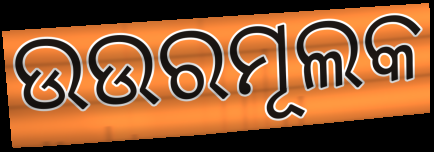
ଉଉରମୂଲକ